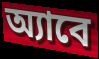
অ্যাবে